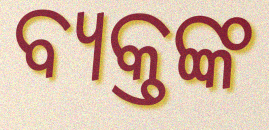
ବ୍ୟକ୍ତଙ୍କ